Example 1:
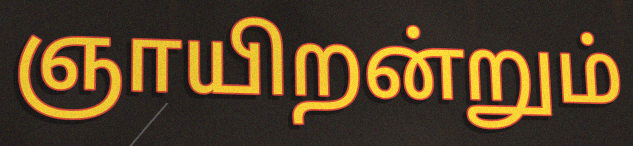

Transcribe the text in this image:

ஞாயிறன்றும்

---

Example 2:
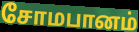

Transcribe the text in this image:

சோமபானம்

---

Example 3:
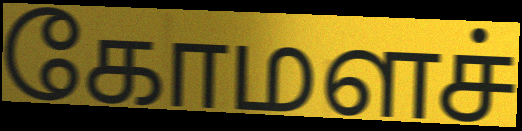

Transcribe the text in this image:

கோமளச்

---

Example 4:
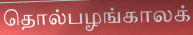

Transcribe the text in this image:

தொல்பழங்காலக்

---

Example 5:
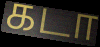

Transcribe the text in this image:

கடா